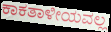
ಕಾಕತಾಳೀಯವಲ್ಲ